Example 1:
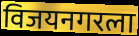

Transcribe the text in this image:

विजयनगरला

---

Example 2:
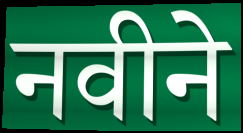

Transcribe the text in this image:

नवीने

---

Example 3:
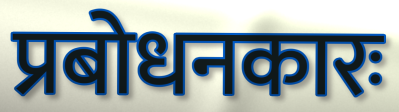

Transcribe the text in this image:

प्रबोधनकारः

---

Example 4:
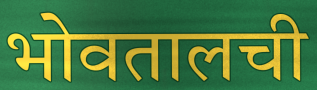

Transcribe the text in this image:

भोवतालची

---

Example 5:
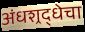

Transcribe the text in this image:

अंधश्रद्धेचा